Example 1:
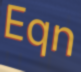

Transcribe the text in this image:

Eqn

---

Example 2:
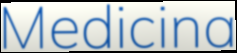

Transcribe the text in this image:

Medicina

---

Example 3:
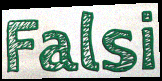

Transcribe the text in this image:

Falsi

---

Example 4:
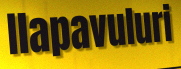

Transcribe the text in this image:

Ilapavuluri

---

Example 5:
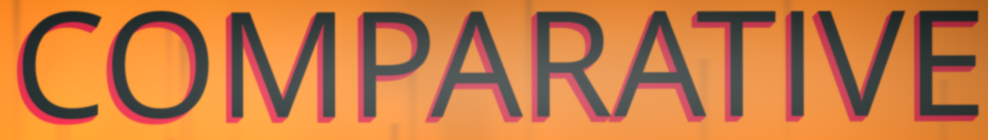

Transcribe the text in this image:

COMPARATIVE